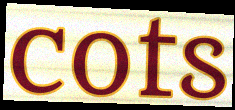
cots